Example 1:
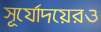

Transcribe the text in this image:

সূর্যোদয়েরও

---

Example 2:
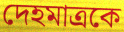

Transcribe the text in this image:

দেহমাত্রকে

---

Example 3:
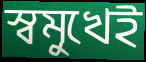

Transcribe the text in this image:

স্বমুখেই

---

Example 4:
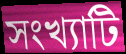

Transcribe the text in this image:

সংখ্যাটি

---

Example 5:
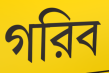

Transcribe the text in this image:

গরিব